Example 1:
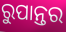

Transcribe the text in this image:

ରୁପାନ୍ତର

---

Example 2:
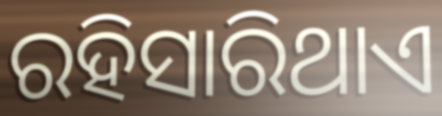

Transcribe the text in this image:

ରହିସାରିଥାଏ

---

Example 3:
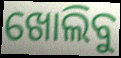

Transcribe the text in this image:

ଖୋଲିବୁ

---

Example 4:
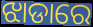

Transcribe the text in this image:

ଝାଡାରେ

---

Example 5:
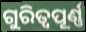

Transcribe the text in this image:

ଗୁରିତ୍ୱପୂର୍ଣ୍ଣ